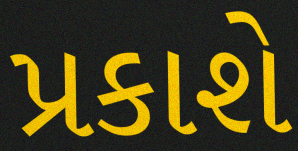
પ્રકાશે